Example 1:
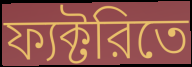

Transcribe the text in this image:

ফ্যক্টরিতে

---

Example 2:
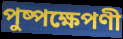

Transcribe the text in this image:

পুষ্পক্ষেপণী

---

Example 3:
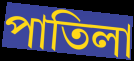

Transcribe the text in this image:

পাতিলা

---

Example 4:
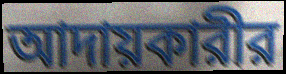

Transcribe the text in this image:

আদায়কারীর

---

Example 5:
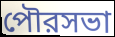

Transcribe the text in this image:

পৌরসভা